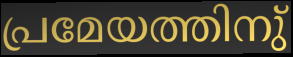
പ്രമേയത്തിനു്